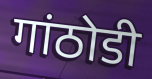
गांठोडी